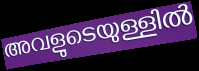
അവളുടെയുള്ളിൽ